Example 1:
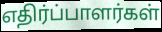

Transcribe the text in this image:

எதிர்ப்பாளர்கள்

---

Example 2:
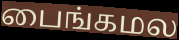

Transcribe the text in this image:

பைங்கமல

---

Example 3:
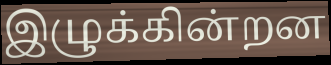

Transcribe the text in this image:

இழுக்கின்றன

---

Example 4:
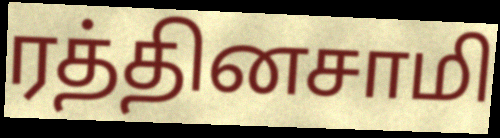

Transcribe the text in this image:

ரத்தினசாமி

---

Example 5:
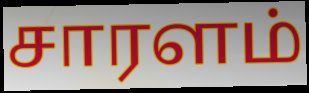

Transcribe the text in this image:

சாரளம்